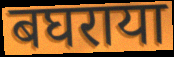
बघराया